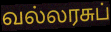
வல்லரசுப்